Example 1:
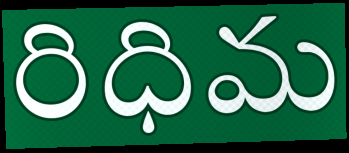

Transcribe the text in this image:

రిధిమ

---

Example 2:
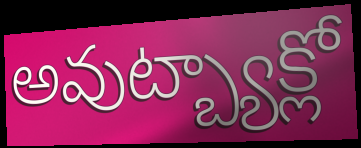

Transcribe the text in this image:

అవుట్బ్యాక్లో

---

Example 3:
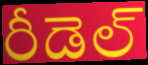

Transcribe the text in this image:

రీడెల్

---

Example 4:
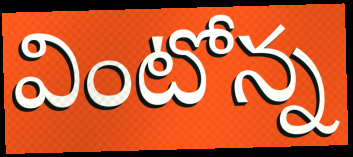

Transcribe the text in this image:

వింటోన్న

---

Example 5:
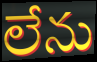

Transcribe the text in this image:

లేను